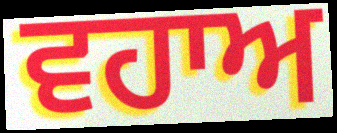
ਵਹਾਅ